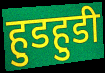
हुडहुडी